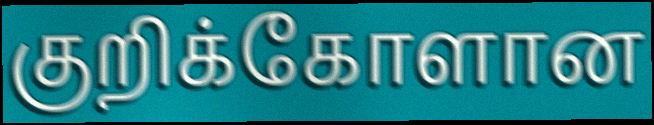
குறிக்கோளான